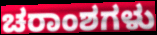
ಚರಾಂಶಗಳು